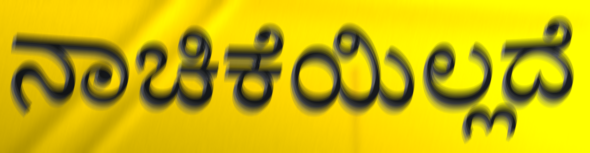
ನಾಚಿಕೆಯಿಲ್ಲದೆ